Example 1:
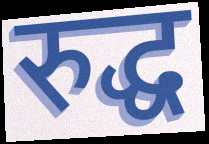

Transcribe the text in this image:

रुद्ध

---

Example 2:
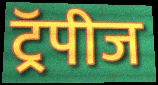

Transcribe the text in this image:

ट्रॅपीज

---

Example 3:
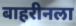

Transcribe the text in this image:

बाहरीनला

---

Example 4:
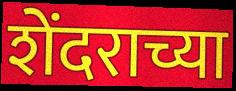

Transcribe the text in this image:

शेंदराच्या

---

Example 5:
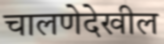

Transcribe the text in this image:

चालणेदेखील